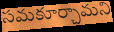
సమకూర్చామని